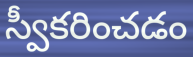
స్వీకరించడం